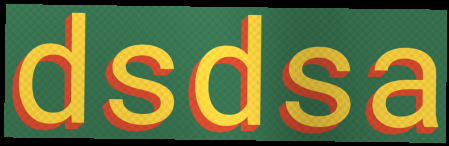
dsdsa